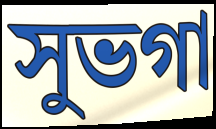
সুভগা